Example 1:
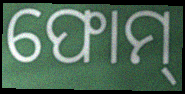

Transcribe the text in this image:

ଫୋମ୍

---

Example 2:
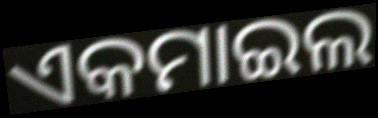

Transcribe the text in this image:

ଏକମାଇଲ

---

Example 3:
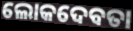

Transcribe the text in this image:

ଲୋକଦେବତା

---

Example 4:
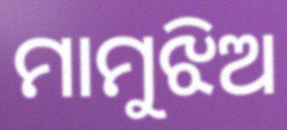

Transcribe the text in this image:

ମାମୁଝିଅ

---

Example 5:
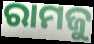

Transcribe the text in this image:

ରାମଜୁ